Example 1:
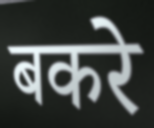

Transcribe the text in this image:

बकरे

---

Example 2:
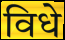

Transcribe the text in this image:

विधे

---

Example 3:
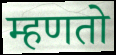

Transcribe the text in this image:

म्हणतो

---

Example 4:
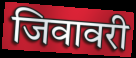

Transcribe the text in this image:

जिवावरी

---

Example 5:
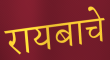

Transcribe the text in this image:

रायबाचे